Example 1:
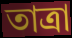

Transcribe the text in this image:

তাত্রা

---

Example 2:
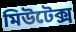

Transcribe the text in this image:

মিউটেক্স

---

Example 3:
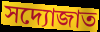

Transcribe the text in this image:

সদ্যোজাত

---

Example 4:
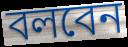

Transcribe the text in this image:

বলবেন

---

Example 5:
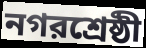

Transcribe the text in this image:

নগরশ্রেষ্ঠী